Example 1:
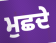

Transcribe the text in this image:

ਮੁਛਦੇ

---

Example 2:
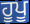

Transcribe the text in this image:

ਹੂਪੂ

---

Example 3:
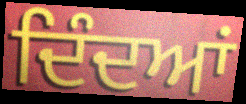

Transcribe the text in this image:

ਦਿੰਦਆਂ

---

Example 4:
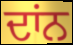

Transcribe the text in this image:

ਦਾਂਨ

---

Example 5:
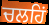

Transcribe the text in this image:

ਚਲਹਿਂ